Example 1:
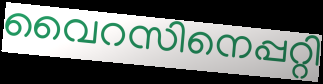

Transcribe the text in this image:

വൈറസിനെപ്പറ്റി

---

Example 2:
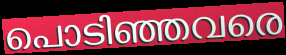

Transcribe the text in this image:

പൊടിഞ്ഞവരെ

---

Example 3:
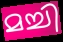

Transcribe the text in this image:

മച്ചി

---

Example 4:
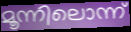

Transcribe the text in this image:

മൂന്നിലൊന്ന്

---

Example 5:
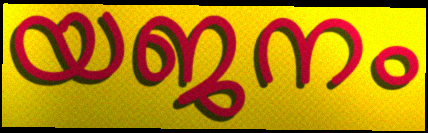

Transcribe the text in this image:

യജനം